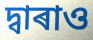
দ্বাৰাও